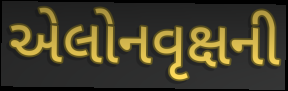
એલોનવૃક્ષની